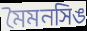
মৈমনসিঙ